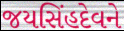
જયસિંહદેવને